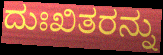
ದುಃಖಿತರನ್ನು